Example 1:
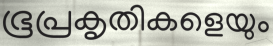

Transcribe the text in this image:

ഭൂപ്രകൃതികളെയും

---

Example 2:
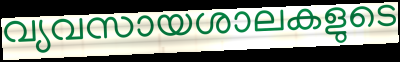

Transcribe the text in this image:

വ്യവസായശാലകളുടെ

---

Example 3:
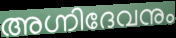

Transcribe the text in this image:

അഗ്നിദേവനും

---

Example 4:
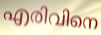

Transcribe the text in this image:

എരിവിനെ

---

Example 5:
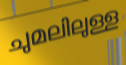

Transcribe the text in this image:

ചുമലിലുള്ള